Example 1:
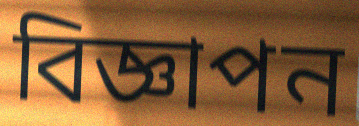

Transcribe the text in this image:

বিজ্ঞাপন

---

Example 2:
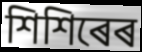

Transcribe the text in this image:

শিশিৰেৰ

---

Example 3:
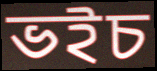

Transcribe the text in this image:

ভইচ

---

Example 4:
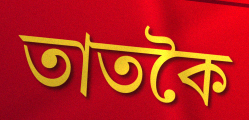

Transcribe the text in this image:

তাতকৈ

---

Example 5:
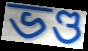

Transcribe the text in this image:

ভণ্ড